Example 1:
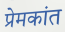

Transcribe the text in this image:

प्रेमकांत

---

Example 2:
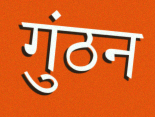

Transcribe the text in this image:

गुंठन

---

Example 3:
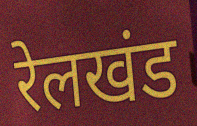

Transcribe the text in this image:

रेलखंड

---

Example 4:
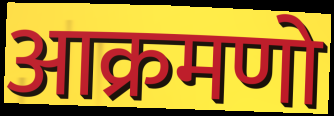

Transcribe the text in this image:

आक्रमणो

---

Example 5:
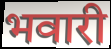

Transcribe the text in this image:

भवारी